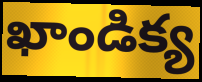
ఖాండిక్య